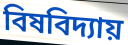
বিষবিদ্যায়